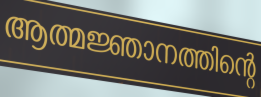
ആത്മജ്ഞാനത്തിന്റെ